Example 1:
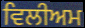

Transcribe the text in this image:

ਵਿਲੀਅਮ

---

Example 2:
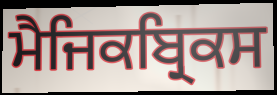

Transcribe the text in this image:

ਮੈਜਿਕਬ੍ਰਿਕਸ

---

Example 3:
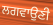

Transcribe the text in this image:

ਲਗਵਾਉਣੀ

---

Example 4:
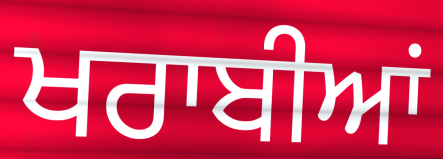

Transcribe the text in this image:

ਖਰਾਬੀਆਂ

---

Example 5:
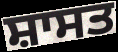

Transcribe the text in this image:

ਸ਼ਾਸਤ